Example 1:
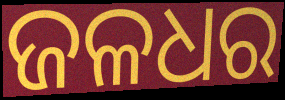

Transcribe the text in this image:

ଜଳଧର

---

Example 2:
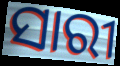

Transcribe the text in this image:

ସାରୀ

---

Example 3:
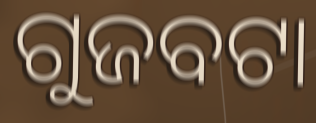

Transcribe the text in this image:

ଗୁଜବଟା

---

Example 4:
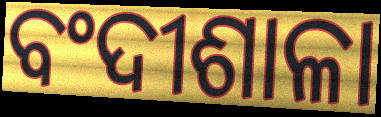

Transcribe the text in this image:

ବଂଦୀଶାଳା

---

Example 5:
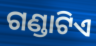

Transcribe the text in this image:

ଗଣ୍ଡାଟିଏ